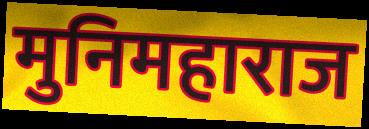
मुनिमहाराज